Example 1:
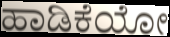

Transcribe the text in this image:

ಹಾಡಿಕೆಯೋ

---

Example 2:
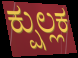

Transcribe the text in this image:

ಕ್ಷುಲ್ಲಕ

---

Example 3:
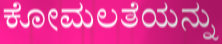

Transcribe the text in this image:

ಕೋಮಲತೆಯನ್ನು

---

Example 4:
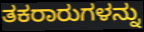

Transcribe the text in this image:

ತಕರಾರುಗಳನ್ನು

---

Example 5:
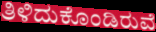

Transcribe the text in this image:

ತಿಳಿದುಕೊಂಡಿರುವೆ